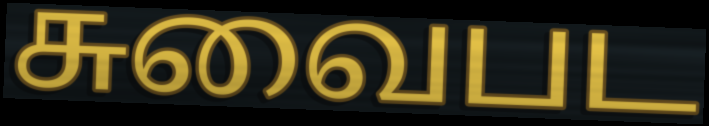
சுவைபட